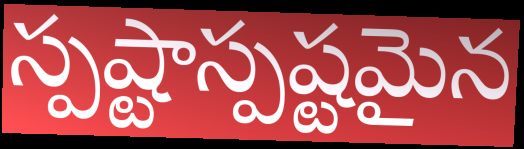
స్పష్టాస్పష్టమైన